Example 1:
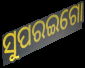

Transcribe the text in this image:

ସୁପରଇଗୋ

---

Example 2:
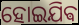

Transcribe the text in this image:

ହୋଇଯିଵ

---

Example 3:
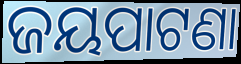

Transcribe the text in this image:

ଜୟପାଟଣା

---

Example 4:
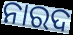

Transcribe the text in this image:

ନାରଦ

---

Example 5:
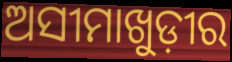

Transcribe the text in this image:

ଅସୀମାଖୁଡ଼ୀର